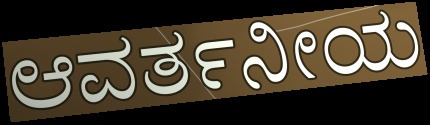
ಆವರ್ತನೀಯ